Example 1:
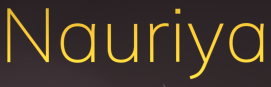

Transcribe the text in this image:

Nauriya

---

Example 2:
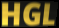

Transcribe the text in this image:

HGL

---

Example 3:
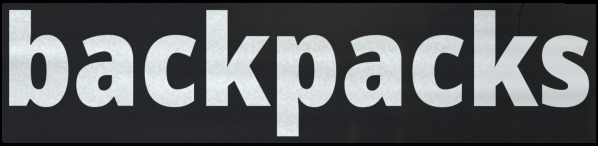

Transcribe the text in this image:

backpacks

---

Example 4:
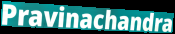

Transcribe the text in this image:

Pravinachandra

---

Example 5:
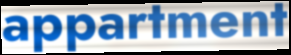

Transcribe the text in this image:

appartment